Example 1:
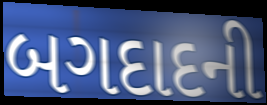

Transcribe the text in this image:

બગદાદની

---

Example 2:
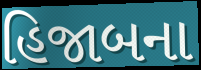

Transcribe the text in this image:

હિજાબના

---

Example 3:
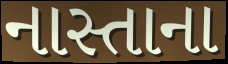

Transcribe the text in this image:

નાસ્તાના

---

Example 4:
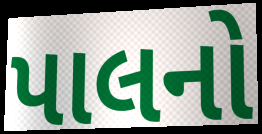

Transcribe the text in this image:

પાલનો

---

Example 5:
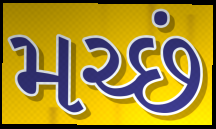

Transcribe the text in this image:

મચ્છં